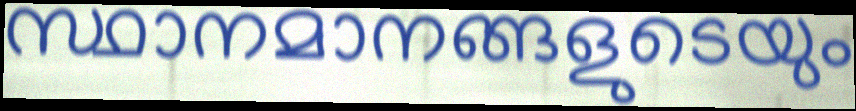
സ്ഥാനമാനങ്ങളുടെയും